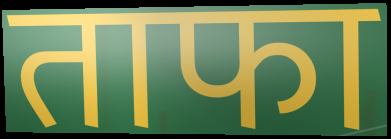
ताफा